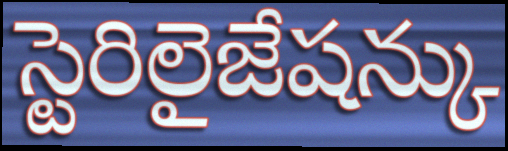
స్టెరిలైజేషన్కు